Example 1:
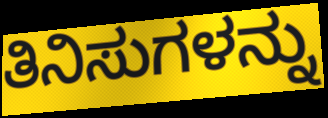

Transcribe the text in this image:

ತಿನಿಸುಗಳನ್ನು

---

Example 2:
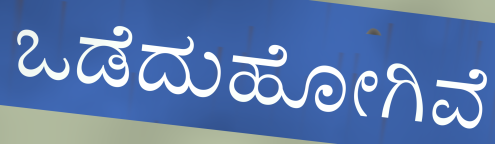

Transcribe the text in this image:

ಒಡೆದುಹೋಗಿವೆ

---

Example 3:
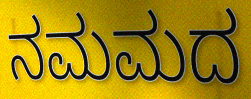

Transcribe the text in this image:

ನಮಮದ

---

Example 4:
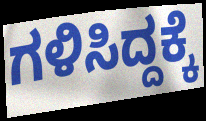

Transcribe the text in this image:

ಗಳಿಸಿದ್ದಕ್ಕೆ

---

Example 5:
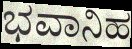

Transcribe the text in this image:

ಭವಾನಿಹ